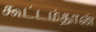
கூட்டம்தான்